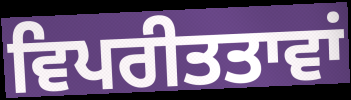
ਵਿਪਰੀਤਤਾਵਾਂ